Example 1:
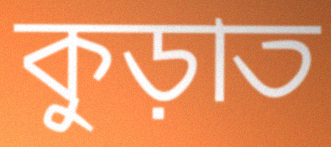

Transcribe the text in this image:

কুড়াত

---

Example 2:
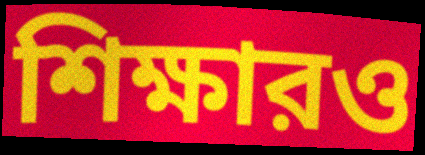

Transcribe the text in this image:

শিক্ষারও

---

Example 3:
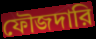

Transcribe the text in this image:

ফৌজদারি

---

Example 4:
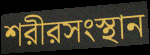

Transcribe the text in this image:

শরীরসংস্থান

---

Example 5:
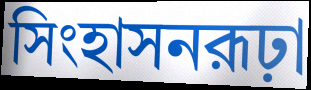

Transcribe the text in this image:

সিংহাসনরূঢ়া